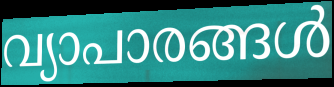
വ്യാപാരങ്ങൾ